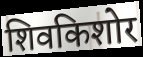
शिवकिशोर